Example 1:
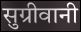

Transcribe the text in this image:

सुग्रीवानी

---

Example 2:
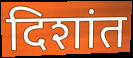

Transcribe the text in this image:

दिशांत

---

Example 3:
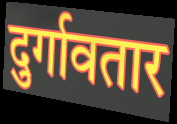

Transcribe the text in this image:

दुर्गावतार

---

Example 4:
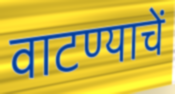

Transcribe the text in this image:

वाटण्याचें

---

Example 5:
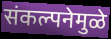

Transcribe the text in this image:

संकल्पनेमुळे